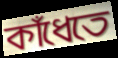
কাঁধেতে